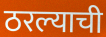
ठरल्याची